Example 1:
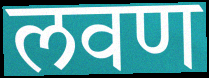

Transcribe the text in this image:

लवण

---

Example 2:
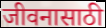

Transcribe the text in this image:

जीवनासाठी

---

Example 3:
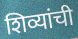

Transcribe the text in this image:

शिव्यांची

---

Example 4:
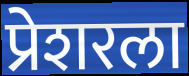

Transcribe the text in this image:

प्रेशरला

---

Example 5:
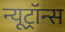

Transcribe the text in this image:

न्यूट्रॉन्स